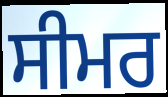
ਸੀਮਰ